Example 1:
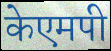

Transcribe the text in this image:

केएमपी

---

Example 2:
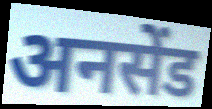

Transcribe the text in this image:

अनसेंड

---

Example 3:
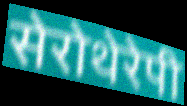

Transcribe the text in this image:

सेरोथेरेपी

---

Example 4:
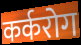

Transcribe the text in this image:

कर्करोग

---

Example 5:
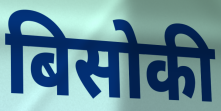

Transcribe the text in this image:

बिसोकी